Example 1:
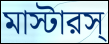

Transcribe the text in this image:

মাস্টারস্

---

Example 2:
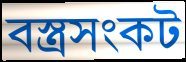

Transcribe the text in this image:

বস্ত্রসংকট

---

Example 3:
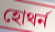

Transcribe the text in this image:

হোথর্ন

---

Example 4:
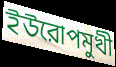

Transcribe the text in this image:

ইউরোপমুখী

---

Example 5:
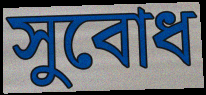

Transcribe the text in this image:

সুবোধ